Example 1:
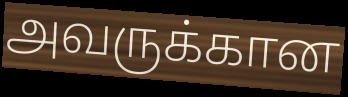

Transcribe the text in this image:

அவருக்கான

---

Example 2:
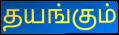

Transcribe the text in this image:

தயங்கும்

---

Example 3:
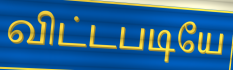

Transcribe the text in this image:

விட்டபடியே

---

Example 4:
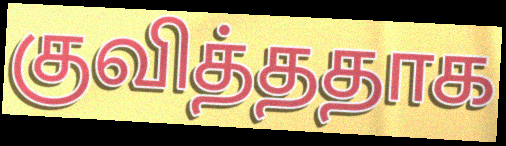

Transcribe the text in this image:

குவித்ததாக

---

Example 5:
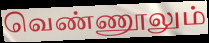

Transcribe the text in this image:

வெண்ணூலும்